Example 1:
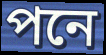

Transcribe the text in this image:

পনে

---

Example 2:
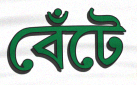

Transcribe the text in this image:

বেঁটে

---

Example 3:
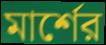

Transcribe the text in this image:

মার্শের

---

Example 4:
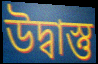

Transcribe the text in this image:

উদ্বাস্তু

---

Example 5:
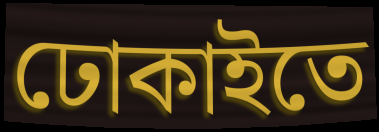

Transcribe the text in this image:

ঢোকাইতে